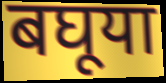
बघूया